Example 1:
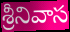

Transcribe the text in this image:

శ్రీనివాస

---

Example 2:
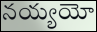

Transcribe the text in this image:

నయ్యయో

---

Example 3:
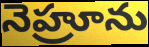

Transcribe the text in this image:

నెహ్రూను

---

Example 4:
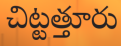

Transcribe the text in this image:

చిట్టత్తూరు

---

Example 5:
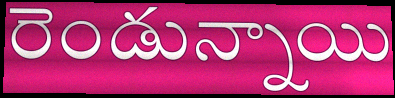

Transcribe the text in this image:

రెండున్నాయి